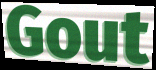
Gout